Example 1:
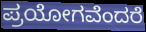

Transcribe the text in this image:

ಪ್ರಯೋಗವೆಂದರೆ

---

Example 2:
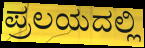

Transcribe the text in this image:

ಪ್ರಲಯದಲ್ಲಿ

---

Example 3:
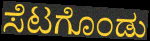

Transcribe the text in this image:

ಸೆಟಗೊಂಡು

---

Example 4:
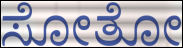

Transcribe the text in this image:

ಸೋತೋ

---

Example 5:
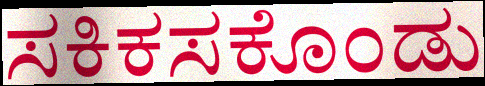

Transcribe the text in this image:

ಸಕಿಕಸಕೊಂಡು